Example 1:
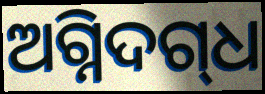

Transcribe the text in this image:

ଅଗ୍ନିଦଗ୍‌ଧ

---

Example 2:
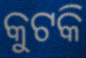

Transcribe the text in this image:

କୁଟକି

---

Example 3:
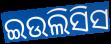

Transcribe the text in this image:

ଇଉଲିସିସ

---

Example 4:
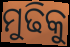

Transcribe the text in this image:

ମୁଢିକୁ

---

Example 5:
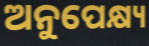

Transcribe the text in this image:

ଅନୁପେକ୍ଷ୍ୟ